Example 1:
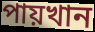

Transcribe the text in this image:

পায়খান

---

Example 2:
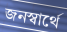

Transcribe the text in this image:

জনস্বার্থে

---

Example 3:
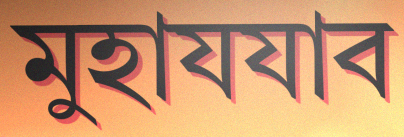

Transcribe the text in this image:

মুহাযযাব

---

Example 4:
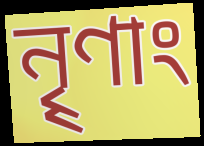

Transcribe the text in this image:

নৄণাং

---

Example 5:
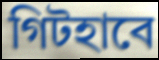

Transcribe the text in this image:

গিটহাবে